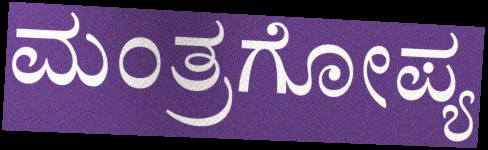
ಮಂತ್ರಗೋಪ್ಯ